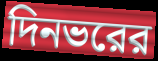
দিনভরের